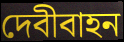
দেবীবাহন